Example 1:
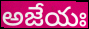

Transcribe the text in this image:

అజేయః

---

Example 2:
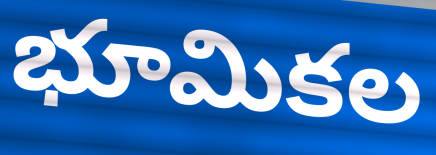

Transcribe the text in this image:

భూమికల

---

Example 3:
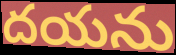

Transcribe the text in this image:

దయను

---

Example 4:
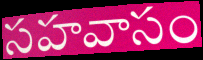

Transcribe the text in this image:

సహవాసం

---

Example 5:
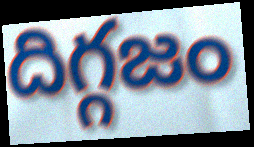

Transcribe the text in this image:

దిగ్గజం